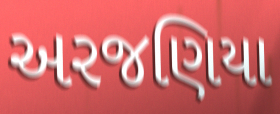
અરજણિયા